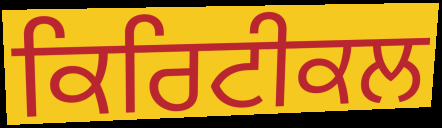
ਕਿਰਿਟੀਕਲ